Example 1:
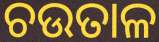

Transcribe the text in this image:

ଚଉତାଳ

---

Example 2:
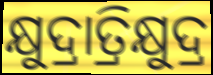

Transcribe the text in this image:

କ୍ଷୁଦ୍ରାତ୍ରିକ୍ଷୁଦ୍ର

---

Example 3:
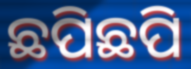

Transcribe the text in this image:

ଛପିଛପି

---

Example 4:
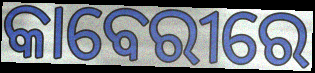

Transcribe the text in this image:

କାବେରୀରେ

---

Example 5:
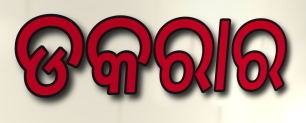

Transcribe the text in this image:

ଡକରାର